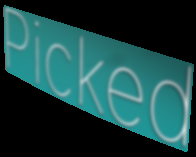
Picked